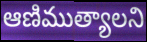
ఆణిముత్యాలని